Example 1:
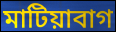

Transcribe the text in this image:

মাটিয়াবাগ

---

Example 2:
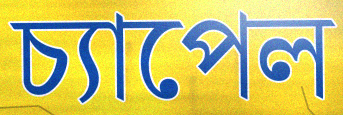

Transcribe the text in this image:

চ্যাপেল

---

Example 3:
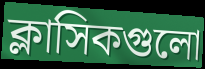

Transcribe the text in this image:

ক্লাসিকগুলো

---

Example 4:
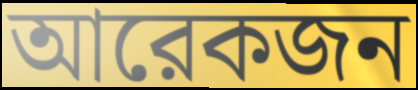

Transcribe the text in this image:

আরেকজন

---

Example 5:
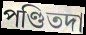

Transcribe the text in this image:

পণ্ডিতদা